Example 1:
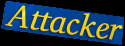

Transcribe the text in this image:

Attacker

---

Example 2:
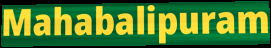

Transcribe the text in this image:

Mahabalipuram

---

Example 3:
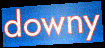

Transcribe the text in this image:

downy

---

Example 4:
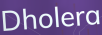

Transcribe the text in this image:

Dholera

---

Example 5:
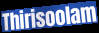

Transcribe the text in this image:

Thirisoolam